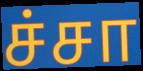
ச்சா